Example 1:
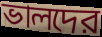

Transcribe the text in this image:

ভালদের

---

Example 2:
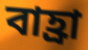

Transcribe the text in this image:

বাহ্রা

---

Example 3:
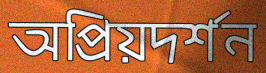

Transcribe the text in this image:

অপ্রিয়দর্শন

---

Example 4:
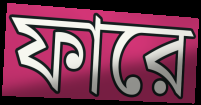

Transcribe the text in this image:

ফারে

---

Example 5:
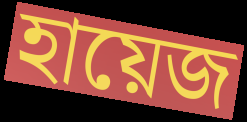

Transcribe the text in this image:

হায়েজ